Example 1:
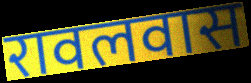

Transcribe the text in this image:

रावलवास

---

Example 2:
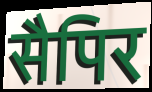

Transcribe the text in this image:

सैपिर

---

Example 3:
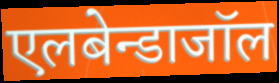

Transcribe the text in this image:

एलबेन्डाजॉल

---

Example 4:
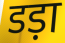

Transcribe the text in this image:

डड़ा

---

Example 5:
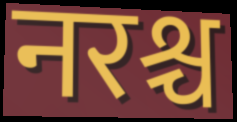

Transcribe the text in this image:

नरश्च